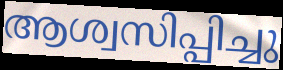
ആശ്വസിപ്പിച്ചു